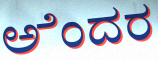
ಅೆಂದರ